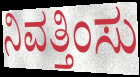
ನಿವತ್ತಿಂಸು